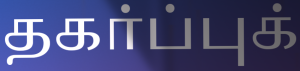
தகர்ப்புக்